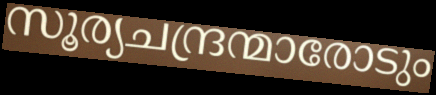
സൂര്യചന്ദ്രന്മാരോടും